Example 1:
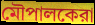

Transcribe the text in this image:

মৌপালকেরা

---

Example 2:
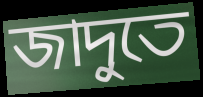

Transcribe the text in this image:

জাদুতে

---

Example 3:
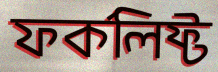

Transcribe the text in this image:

ফর্কলিফ্ট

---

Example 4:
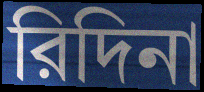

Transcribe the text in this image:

রিদিনা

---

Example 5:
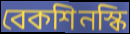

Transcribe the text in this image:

বেকশিনস্কি